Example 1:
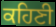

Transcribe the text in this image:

ਕਹਿਣੀ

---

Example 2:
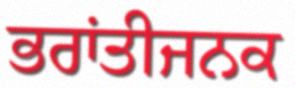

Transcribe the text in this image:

ਭਰਾਂਤੀਜਨਕ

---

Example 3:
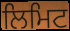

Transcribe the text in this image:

ਲਿਮਿਟ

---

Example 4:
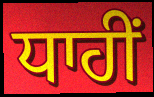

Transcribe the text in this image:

ਧਾਹੀਂ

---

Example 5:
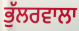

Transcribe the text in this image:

ਭੁੱਲਰਵਾਲਾ